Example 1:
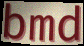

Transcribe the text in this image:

bmd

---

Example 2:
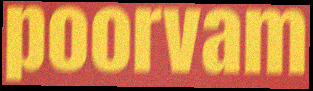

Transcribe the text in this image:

poorvam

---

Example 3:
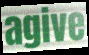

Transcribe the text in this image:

agive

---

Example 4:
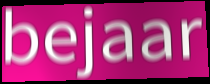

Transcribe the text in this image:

bejaar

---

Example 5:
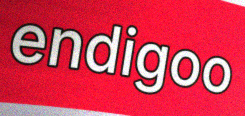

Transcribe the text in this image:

endigoo